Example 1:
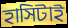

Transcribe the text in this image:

হাসিটাই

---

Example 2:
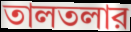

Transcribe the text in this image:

তালতলার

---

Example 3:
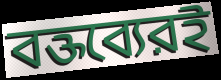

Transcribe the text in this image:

বক্তব্যেরই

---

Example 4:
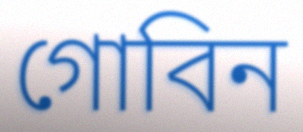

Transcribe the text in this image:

গোবিন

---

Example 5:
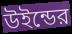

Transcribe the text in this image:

উইন্ডের